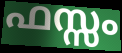
ഫസ്സം